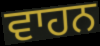
ਵਾਹਨ